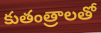
కుతంత్రాలతో